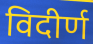
विदीर्ण